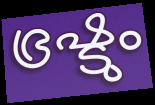
ഭ്രഷ്ടും